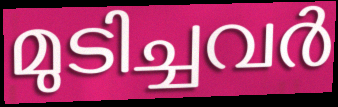
മുടിച്ചവർ